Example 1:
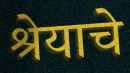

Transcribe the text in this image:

श्रेयाचे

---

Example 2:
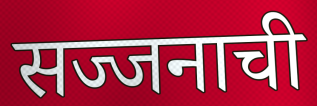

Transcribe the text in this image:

सज्जनाची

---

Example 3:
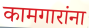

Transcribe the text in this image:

कामगारांना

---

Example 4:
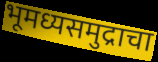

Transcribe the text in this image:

भूमध्यसमुद्राचा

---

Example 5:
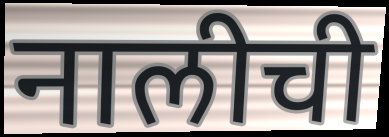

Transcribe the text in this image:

नालीची